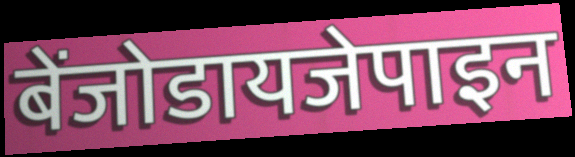
बेंजोडायजेपाइन